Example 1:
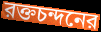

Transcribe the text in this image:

রক্তচন্দনের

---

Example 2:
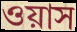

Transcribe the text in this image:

ওয়াস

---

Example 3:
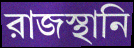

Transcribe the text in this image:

রাজস্থানি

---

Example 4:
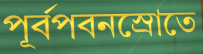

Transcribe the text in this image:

পূর্বপবনস্রোতে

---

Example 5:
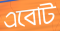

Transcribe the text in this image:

এবোট